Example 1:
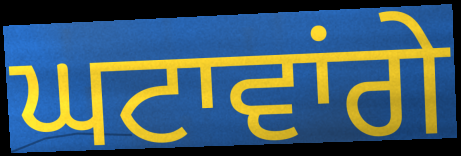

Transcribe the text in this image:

ਘਟਾਵਾਂਗੇ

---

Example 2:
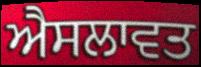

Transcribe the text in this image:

ਐਸਲਾਵਤ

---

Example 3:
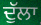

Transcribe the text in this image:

ਦੁੱਲਾ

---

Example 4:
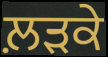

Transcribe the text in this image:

ਲ਼ਡ਼ਕੇ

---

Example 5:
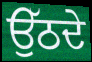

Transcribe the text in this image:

ਉੱਠਦੇ